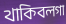
থাকিবলগা